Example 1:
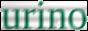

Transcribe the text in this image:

urino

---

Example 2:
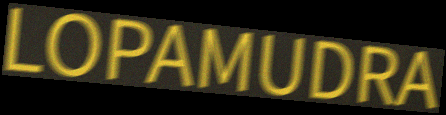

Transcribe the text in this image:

LOPAMUDRA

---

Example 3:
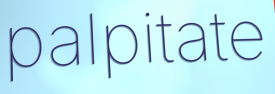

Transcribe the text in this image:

palpitate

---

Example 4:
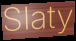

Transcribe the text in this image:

Slaty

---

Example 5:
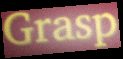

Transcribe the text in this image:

Grasp